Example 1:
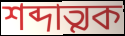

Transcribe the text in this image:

শব্দাত্মক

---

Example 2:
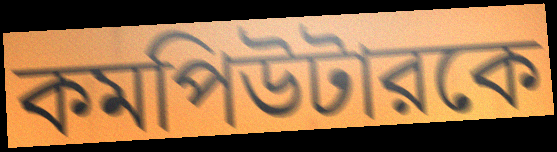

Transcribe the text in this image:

কমপিউটারকে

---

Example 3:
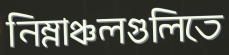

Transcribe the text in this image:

নিম্নাঞ্চলগুলিতে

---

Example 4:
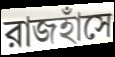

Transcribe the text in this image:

রাজহাঁসে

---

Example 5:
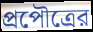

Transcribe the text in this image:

প্রপৌত্রের